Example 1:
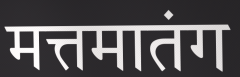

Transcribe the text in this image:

मत्तमातंग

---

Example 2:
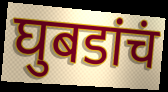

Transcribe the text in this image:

घुबडांचं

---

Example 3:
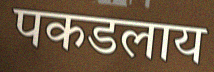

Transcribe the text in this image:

पकडलाय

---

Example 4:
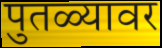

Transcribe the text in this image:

पुतळ्यावर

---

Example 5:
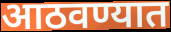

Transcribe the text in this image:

आठवण्यात